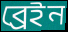
ব্ৰেইন